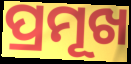
ପ୍ରମୂଖ